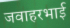
जवाहरभाई